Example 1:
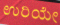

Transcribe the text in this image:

ಉರಿಯೇ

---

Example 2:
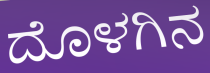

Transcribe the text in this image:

ದೊಳಗಿನ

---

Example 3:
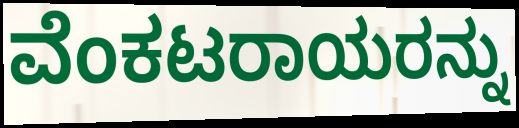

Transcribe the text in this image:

ವೆಂಕಟರಾಯರನ್ನು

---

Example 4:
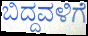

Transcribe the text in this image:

ಬಿದ್ದವಳಿಗೆ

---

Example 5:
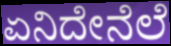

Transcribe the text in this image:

ಏನಿದೇನೆಲೆ